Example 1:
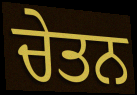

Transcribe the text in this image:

ਚੇਤਨ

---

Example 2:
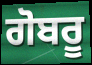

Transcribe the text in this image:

ਗੋਬਰੂ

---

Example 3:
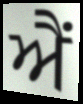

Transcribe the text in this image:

ਐੰ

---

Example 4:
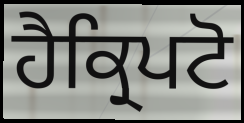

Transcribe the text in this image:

ਹੈਕ੍ਰਿਪਟੋ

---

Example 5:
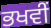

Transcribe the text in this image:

ਭਖਵੀਂ